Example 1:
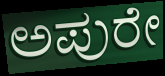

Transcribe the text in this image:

ಅಪುರೇ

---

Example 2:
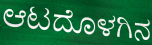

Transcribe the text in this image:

ಆಟದೊಳಗಿನ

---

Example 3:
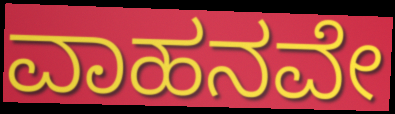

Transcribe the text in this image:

ವಾಹನವೇ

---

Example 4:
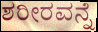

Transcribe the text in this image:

ಶರೀರವನ್ನೆ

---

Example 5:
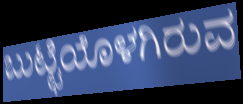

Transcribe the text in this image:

ಬುಟ್ಟಿಯೊಳಗಿರುವ